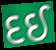
દઈ